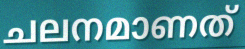
ചലനമാണത്